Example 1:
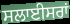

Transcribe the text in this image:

ਸਲਾਈਸਰਾਂ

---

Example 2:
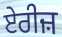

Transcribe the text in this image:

ਏਰੀਜ਼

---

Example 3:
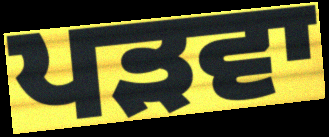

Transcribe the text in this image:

ਪੜਵਾ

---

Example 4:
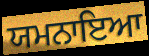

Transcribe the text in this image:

ਯਮਨਾਇਆ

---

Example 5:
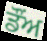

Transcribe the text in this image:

ਡੌਂਅ